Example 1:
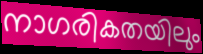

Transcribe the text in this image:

നാഗരികതയിലും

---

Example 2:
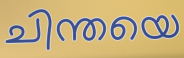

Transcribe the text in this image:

ചിന്തയെ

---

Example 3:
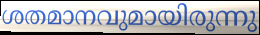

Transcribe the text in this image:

ശതമാനവുമായിരുന്നു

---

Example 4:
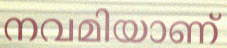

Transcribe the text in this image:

നവമിയാണ്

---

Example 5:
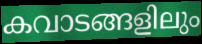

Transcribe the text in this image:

കവാടങ്ങളിലും